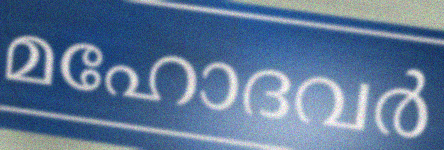
മഹോദവർ